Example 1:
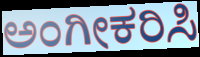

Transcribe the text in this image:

ಅಂಗೀಕರಿಸಿ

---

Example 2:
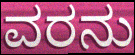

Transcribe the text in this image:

ವರನು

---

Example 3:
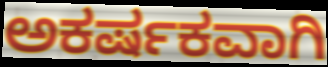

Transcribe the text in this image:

ಅಕರ್ಷಕವಾಗಿ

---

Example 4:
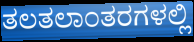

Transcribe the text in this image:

ತಲತಲಾಂತರಗಳಲ್ಲಿ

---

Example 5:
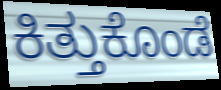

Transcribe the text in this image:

ಕಿತ್ತುಕೊಂಡೆ